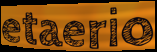
etaerio